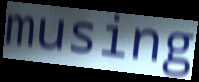
musing